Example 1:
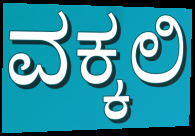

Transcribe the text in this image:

ವಕ್ಕಲಿ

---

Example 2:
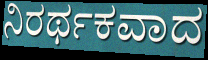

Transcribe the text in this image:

ನಿರರ್ಥಕವಾದ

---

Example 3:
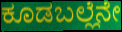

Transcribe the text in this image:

ಕೂಡಬಲ್ಲೆನೇ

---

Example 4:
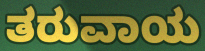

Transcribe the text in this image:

ತರುವಾಯ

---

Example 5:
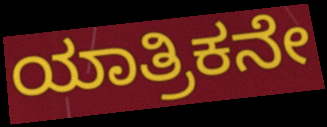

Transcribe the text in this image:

ಯಾತ್ರಿಕನೇ